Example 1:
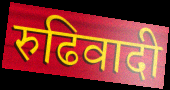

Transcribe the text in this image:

रुढिवादी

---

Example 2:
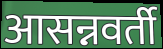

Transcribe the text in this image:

आसन्नवर्ती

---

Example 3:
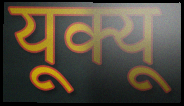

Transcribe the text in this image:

यूक्यू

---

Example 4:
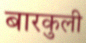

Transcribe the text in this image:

बारकुली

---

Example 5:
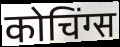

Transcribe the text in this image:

कोचिंग्स